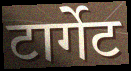
टार्गेट